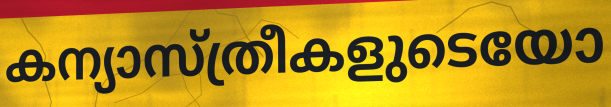
കന്യാസ്ത്രീകളുടെയോ